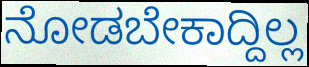
ನೋಡಬೇಕಾದ್ದಿಲ್ಲ